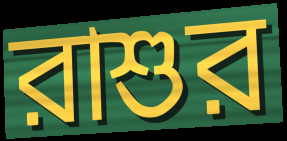
রাশুর